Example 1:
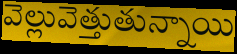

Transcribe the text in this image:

వెల్లువెత్తుతున్నాయి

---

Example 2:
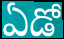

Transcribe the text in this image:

ఏడో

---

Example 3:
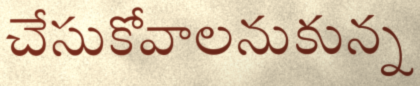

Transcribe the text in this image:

చేసుకోవాలనుకున్న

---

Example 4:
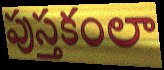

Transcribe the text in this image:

పుస్తకంలా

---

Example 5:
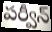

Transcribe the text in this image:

పర్వీన్